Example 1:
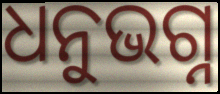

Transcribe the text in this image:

ଧନୁଭଗ୍ନ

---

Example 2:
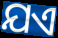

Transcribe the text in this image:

ଯଏ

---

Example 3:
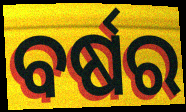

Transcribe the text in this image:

ବର୍ଷର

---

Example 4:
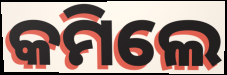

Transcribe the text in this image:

କମିଲେ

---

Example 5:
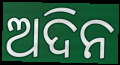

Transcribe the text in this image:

ଅଦିନ